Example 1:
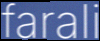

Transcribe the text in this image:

farali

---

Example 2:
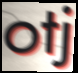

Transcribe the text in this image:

otj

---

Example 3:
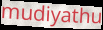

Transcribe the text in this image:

mudiyathu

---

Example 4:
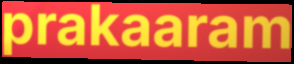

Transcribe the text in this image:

prakaaram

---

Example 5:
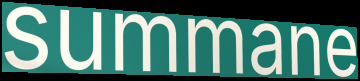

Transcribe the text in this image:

summane